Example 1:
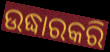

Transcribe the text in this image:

ଉଦ୍ଧାରକରି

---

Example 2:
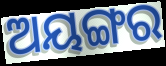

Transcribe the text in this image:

ଅୟଙ୍ଗର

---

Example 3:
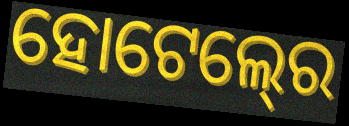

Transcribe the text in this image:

ହୋଟେଲ୍‍ରେ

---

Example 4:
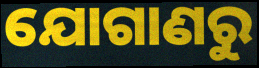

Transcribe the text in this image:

ଯୋଗାଣରୁ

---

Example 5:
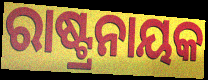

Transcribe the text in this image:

ରାଷ୍ଟ୍ରନାୟକ